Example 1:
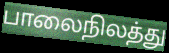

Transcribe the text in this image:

பாலைநிலத்து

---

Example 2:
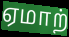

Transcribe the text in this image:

ஏமாற்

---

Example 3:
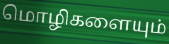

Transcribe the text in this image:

மொழிகளையும்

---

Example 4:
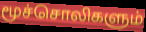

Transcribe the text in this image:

மூச்சொலிகளும்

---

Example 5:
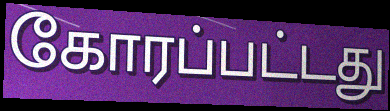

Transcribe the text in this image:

கோரப்பட்டது